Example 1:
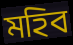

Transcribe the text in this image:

মহিব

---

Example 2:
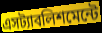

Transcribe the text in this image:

এসট্যাবলিশমেন্টে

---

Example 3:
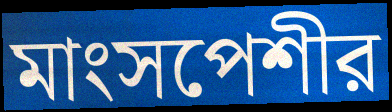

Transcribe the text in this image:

মাংসপেশীর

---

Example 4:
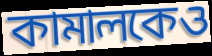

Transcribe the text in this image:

কামালকেও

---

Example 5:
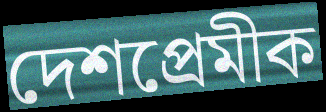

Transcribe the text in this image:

দেশপ্রেমীক